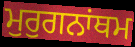
ਮੁਰੁਗਨਾਂਥਮ